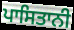
ਪਾਸਿਤਾਨੀ